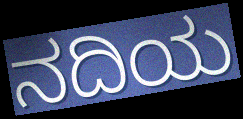
ನದಿಯ